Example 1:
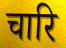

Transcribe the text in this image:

चारि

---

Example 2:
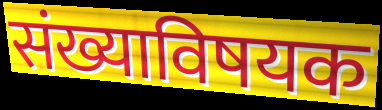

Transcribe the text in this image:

संख्याविषयक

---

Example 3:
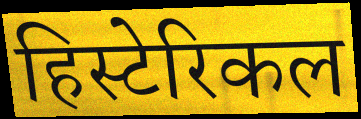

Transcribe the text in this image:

हिस्टेरिकल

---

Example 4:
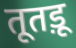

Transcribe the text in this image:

तूतड़ू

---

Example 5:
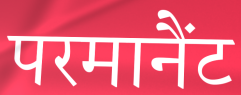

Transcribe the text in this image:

परमानैंट